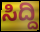
ಸಿದ್ದಿ